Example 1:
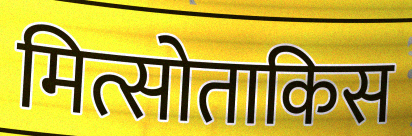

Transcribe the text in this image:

मित्सोताकिस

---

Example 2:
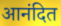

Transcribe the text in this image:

आनंदित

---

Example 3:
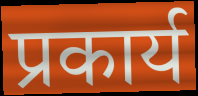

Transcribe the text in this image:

प्रकार्य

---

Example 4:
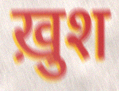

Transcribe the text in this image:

ख़ुश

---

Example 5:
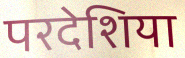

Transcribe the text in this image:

परदेशिया